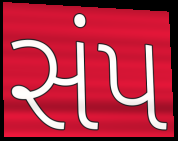
સંપ